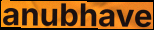
anubhave